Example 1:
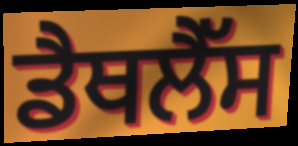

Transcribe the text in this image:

ਡੈਥਲੈੱਸ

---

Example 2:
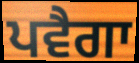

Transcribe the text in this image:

ਪਵੈਗਾ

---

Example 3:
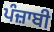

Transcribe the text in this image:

ਪੰਜ਼ਾਬੀ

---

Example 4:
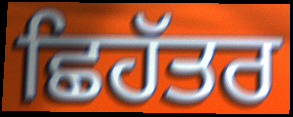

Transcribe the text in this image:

ਛਿਹੱਤਰ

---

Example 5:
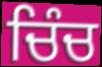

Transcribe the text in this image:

ਚਿੰਚ